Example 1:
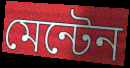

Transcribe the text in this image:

মেন্টেন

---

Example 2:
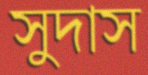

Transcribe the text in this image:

সুদাস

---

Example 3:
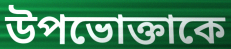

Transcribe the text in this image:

উপভোক্তাকে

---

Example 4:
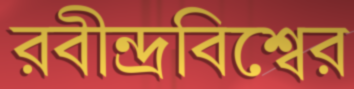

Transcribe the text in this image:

রবীন্দ্রবিশ্বের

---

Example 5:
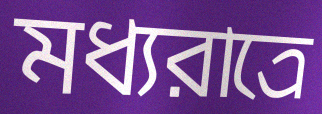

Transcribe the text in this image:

মধ্যরাত্রে